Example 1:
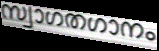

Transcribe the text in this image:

സ്വാഗതഗാനം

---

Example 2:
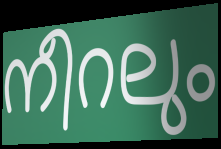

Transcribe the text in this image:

നീറലും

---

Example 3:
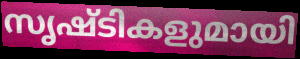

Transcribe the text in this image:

സൃഷ്ടികളുമായി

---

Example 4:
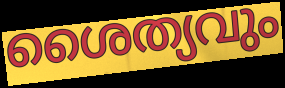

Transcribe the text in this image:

ശൈത്യവും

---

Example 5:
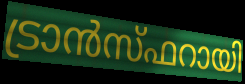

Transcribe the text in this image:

ട്രാൻസ്ഫറായി